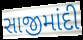
સાજીમાંદી